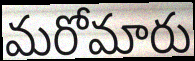
మరోమారు